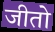
जीतो